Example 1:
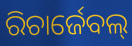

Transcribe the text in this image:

ରିଚାର୍ଜେବଲ୍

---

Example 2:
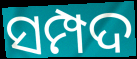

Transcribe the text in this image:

ସମ୍ପଦ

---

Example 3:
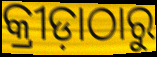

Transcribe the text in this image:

କ୍ରୀଡ଼ାଠାରୁ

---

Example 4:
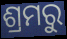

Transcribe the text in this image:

ଶ୍ରମରୁ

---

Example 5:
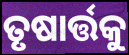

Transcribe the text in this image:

ତୃଷାର୍ତ୍ତକୁ